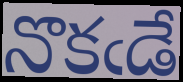
నొకఁడే